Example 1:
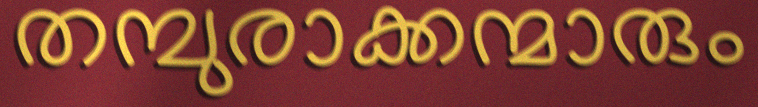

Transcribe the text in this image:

തമ്പുരാക്കന്മാരും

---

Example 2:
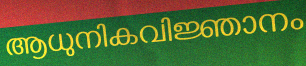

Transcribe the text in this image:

ആധുനികവിജ്ഞാനം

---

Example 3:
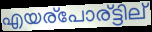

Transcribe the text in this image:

എയര്പോര്ട്ടില്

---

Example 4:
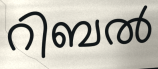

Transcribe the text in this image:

റിബൽ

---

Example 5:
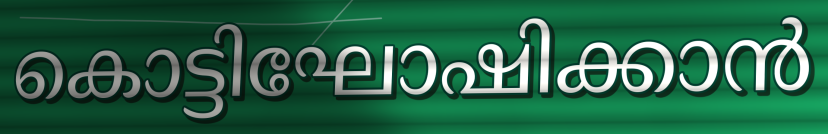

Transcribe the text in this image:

കൊട്ടിഘോഷിക്കാൻ